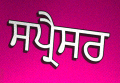
ਸਪ੍ਰੈਸਰ